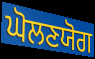
ਘੋਲਣਯੋਗ